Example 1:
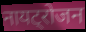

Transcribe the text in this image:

नायट्रोजन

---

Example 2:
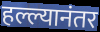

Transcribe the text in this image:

हल्ल्यानंतर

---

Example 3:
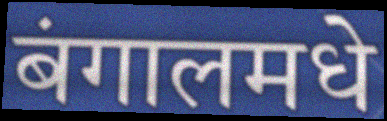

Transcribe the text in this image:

बंगालमधे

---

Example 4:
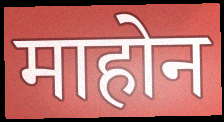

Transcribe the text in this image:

माहोन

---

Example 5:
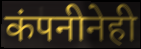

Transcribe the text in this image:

कंपनीनेही